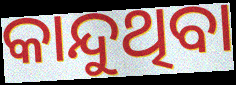
କାନ୍ଦୁଥିବା